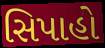
સિપાહો